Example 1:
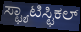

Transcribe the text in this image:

ಸ್ಟ್ಯಾಟಿಸ್ಟಿಕಲ್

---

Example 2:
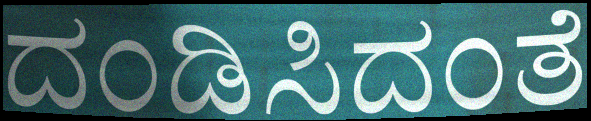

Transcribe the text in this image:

ದಂಡಿಸಿದಂತೆ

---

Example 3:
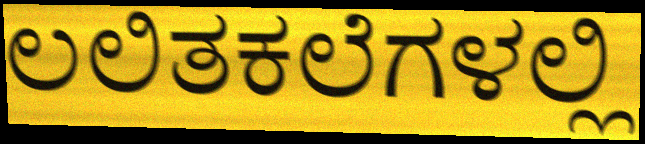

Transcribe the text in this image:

ಲಲಿತಕಲೆಗಳಲ್ಲಿ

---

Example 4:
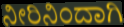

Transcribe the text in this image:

ನೀರಿನಿಂದಾಗಿ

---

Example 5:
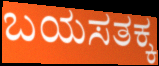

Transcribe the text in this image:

ಬಯಸತಕ್ಕ